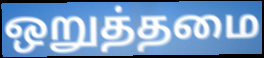
ஒறுத்தமை